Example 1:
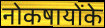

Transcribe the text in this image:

नोकषायोंके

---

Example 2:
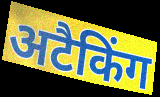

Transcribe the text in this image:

अटैकिंग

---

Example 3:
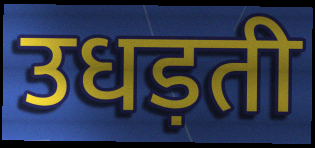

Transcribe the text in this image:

उधड़ती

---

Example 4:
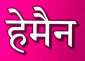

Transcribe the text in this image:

हेमैन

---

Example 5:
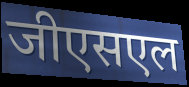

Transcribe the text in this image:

जीएसएल